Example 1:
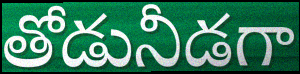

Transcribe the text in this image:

తోడునీడగా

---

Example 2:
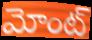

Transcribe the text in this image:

మోంట్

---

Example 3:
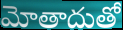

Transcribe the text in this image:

మోతాదుతో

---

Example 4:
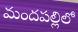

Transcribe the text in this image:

మందపల్లిలో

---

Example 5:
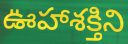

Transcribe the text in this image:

ఊహాశక్తిని